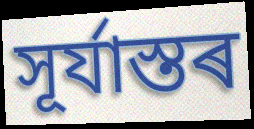
সূৰ্যাস্তৰ